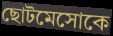
ছোটমেসোকে